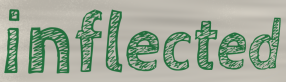
inflected